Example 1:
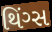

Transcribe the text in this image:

થિંગ્સ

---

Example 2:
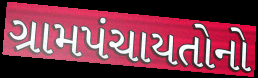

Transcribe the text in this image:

ગ્રામપંચાયતોનો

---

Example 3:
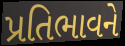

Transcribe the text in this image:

પ્રતિભાવને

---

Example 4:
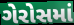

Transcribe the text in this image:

ગેરોસમાં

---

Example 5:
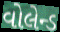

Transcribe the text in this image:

વોલેન્ડ